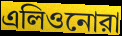
এলিওনোরা